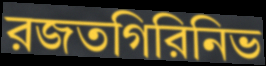
রজতগিরিনিভ